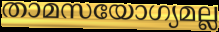
താമസയോഗ്യമല്ല